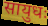
सायुधः